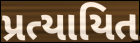
પ્રત્યાયિત